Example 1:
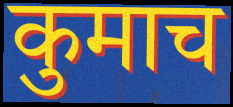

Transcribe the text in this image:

कुमाच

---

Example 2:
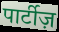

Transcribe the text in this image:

पार्टीज़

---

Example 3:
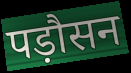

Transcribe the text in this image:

पड़ौसन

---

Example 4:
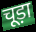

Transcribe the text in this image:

चूड़ा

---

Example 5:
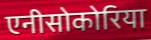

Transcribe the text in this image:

एनीसोकोरिया